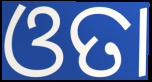
ଓତା